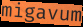
migavum